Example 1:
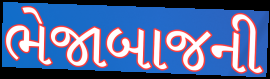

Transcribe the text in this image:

ભેજાબાજની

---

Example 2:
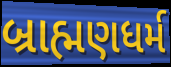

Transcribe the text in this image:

બ્રાહ્મણધર્મ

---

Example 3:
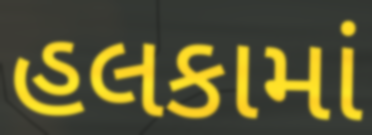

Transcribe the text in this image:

હલકામાં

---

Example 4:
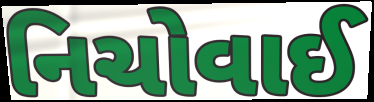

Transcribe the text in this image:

નિચોવાઈ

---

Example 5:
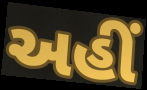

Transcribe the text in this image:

અહીં